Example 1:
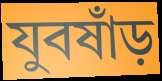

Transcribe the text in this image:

যুবষাঁড়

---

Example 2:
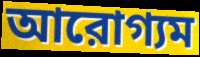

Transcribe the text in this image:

আরোগ্যম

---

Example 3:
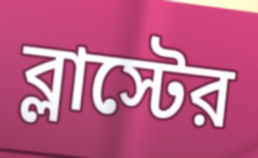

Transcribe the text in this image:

ব্লাস্টের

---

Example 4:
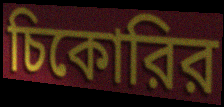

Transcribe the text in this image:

চিকোরির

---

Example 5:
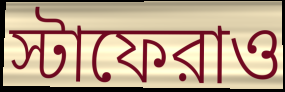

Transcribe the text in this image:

স্টাফেরাও